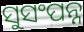
ସୁସଂପନ୍ନ